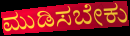
ಮುಡಿಸಬೇಕು